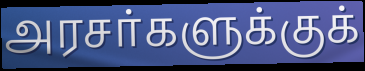
அரசர்களுக்குக்